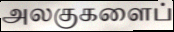
அலகுகளைப்